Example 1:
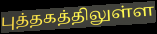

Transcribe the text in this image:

புத்தகத்திலுள்ள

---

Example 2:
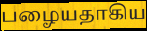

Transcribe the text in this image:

பழையதாகிய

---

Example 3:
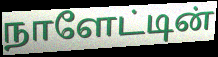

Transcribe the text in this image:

நாளேட்டின்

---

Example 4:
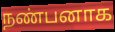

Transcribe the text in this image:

நண்பனாக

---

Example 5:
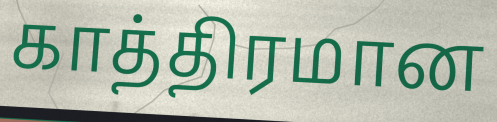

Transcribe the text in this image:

காத்திரமான